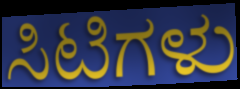
ಸಿಟಿಗಳು